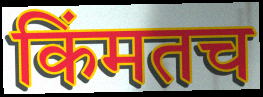
किंमतच